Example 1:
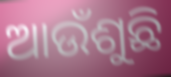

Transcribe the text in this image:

ଆଉଁଶୁଛି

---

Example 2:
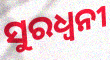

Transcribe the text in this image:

ସୁରଧ୍ୱନୀ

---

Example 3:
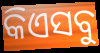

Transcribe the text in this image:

କିଏସବୁ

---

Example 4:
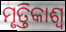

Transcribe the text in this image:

ମୃତ୍ତିକାଶ୍ୱ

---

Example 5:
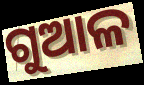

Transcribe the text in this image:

ଗୁଆଳ